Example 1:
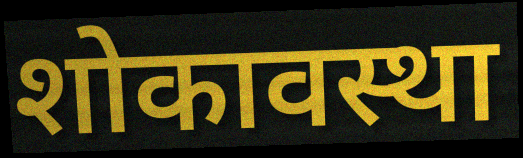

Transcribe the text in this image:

शोकावस्था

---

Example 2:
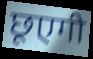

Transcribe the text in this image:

छूएगी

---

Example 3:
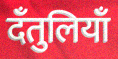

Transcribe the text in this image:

दँतुलियाँ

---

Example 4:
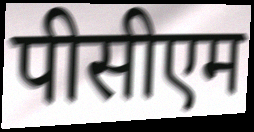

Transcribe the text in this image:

पीसीएम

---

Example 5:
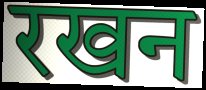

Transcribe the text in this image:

रखन